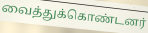
வைத்துக்கொண்டனர்